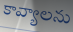
కావ్యాలను